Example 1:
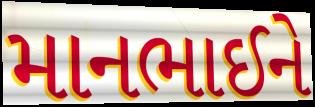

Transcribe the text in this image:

માનભાઈને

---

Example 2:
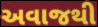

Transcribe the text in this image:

અવાજથી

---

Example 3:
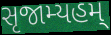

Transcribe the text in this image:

સૃજામ્યહમ્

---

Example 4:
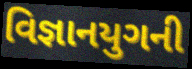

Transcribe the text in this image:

વિજ્ઞાનયુગની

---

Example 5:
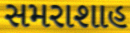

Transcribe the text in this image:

સમરાશાહ